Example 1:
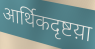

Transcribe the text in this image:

आर्थिकदृष्टय़ा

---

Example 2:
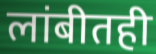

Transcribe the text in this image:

लांबीतही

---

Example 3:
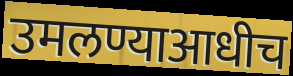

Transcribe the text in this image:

उमलण्याआधीच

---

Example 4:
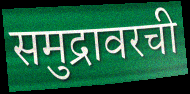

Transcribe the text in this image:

समुद्रावरची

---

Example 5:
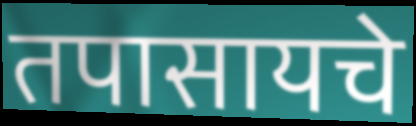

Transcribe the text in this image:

तपासायचे